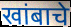
खांबाचे